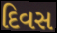
દિવસ